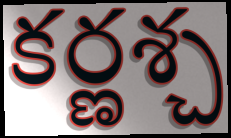
కర్ణశ్చ